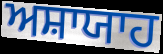
ਅਸ਼ਾਯਾਹ